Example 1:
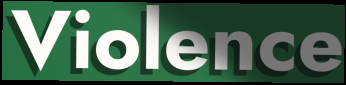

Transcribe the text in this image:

Violence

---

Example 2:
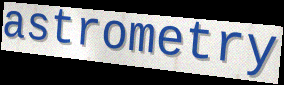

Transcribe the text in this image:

astrometry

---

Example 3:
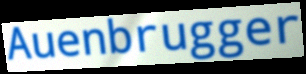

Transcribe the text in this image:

Auenbrugger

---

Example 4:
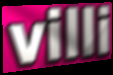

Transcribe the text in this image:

villi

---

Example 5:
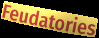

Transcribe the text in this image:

Feudatories